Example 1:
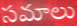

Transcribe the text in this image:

సమాలు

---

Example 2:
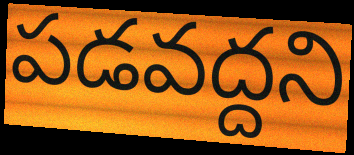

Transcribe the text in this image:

పడవద్దని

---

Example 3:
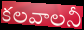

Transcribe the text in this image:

కలవాలనీ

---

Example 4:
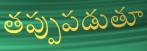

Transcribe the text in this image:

తప్పుపడుతూ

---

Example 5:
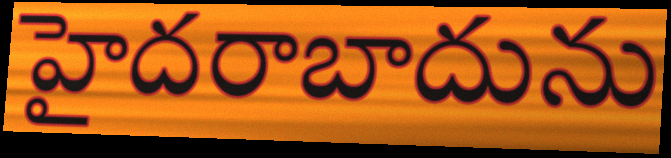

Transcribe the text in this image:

హైదరాబాదును